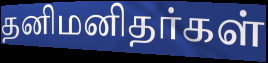
தனிமனிதர்கள்